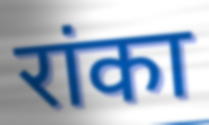
रांका